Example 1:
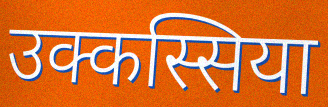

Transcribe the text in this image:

उक्कस्सिया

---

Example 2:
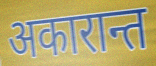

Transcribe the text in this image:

अकारान्त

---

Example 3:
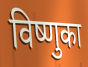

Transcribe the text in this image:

विष्णुका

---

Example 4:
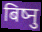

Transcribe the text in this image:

बिष्नु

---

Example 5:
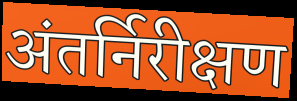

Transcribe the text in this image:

अंतर्निरीक्षण